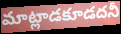
మాట్లాడకూడదనీ